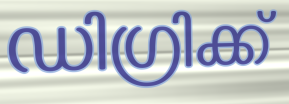
ഡിഗ്രിക്ക്